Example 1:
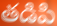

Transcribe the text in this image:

తడిపి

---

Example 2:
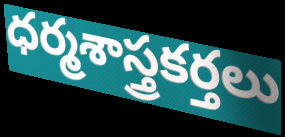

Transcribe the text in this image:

ధర్మశాస్త్రకర్తలు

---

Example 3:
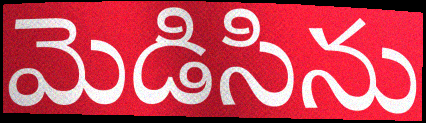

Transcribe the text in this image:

మెడిసిను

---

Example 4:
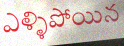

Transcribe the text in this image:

ఎళ్ళిపోయిన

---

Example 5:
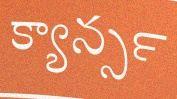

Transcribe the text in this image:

క్యాన్సర్‍